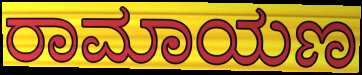
ರಾಮಾಯಣ